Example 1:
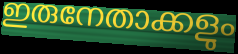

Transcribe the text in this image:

ഇരുനേതാക്കളും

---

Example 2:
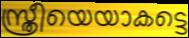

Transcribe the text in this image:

സ്ത്രീയെയാകട്ടെ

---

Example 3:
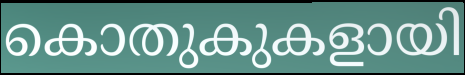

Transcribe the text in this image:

കൊതുകുകളായി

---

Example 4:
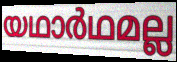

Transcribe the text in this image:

യഥാർഥമല്ല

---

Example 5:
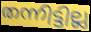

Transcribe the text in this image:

തന്നിട്ടില്ല